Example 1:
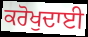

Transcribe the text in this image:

ਕਰੋਖੁਦਾਈ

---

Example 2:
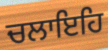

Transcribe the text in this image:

ਚਲਾਇਹਿ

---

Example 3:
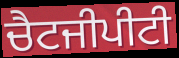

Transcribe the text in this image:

ਚੈਟਜੀਪੀਟੀ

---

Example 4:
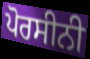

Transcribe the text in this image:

ਪੋਰਸੀਨੀ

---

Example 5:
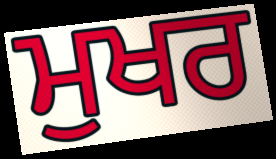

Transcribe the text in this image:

ਮੁਖਰ